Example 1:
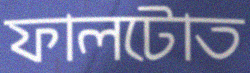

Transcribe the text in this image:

ফালটোত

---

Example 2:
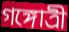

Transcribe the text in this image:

গঙ্গোত্ৰী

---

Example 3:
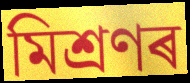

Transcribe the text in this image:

মিশ্ৰণৰ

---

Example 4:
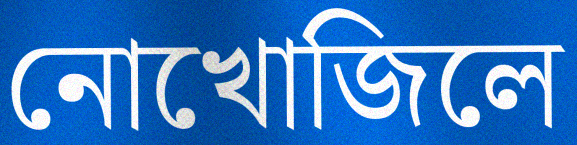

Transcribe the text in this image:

নোখোজিলে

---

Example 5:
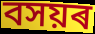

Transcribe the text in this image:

বসয়ৰ